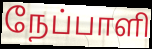
நேப்பாளி